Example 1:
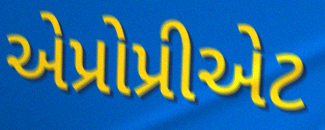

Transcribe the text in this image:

એપ્રોપ્રીએટ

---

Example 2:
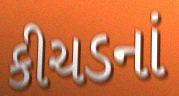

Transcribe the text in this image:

કીચડનાં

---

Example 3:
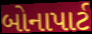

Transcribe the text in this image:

બોનાપાર્ટ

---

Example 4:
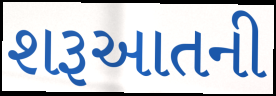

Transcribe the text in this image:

શરૂઆતની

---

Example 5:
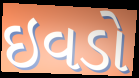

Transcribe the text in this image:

ઇવડો